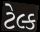
ટેલ્ક